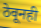
ठेवूनही